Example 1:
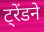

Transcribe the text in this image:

ट्रेंडने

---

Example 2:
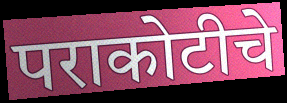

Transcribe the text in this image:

पराकोटीचे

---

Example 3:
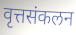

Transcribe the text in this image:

वृत्तसंकलन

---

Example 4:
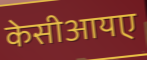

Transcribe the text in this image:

केसीआयए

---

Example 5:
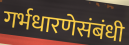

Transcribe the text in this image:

गर्भधारणेसंबंधी